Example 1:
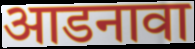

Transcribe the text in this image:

आडनावा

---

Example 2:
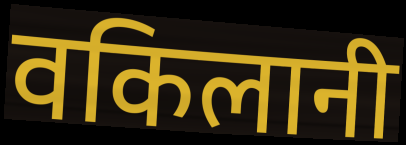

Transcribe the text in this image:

वकिलानी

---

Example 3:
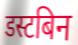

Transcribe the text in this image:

डस्टबिन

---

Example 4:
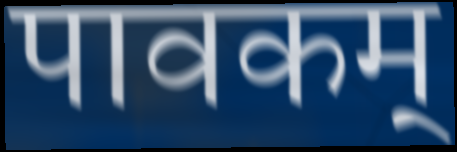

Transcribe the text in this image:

पावकम्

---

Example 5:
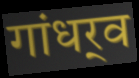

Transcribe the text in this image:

गांधर्व